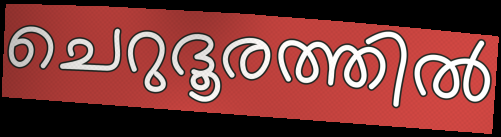
ചെറുദൂരത്തിൽ